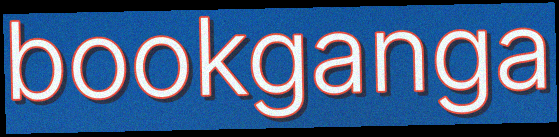
bookganga